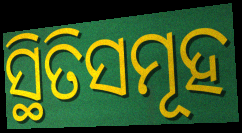
ସ୍ଥିତିସମୂହ